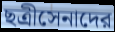
ছত্রীসেনাদের